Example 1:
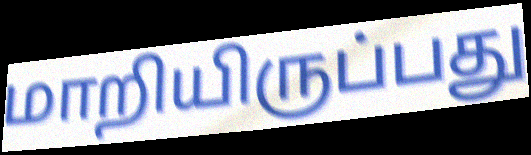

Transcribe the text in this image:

மாறியிருப்பது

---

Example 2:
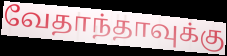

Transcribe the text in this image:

வேதாந்தாவுக்கு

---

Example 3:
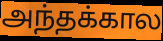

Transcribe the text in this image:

அந்தக்கால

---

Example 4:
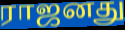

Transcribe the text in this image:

ராஜனது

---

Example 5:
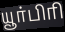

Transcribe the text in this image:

யூர்பிரி